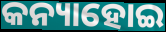
କନ୍ୟାହୋଇ